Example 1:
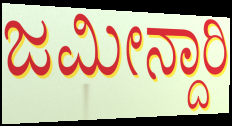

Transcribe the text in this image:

ಜಮೀನ್ದಾರಿ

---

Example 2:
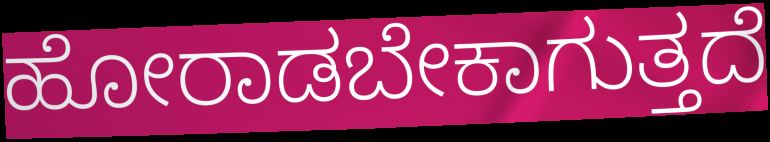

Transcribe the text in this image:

ಹೋರಾಡಬೇಕಾಗುತ್ತದೆ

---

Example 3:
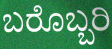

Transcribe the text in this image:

ಬರೊಬ್ಬರಿ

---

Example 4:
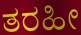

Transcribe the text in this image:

ತರಹೀ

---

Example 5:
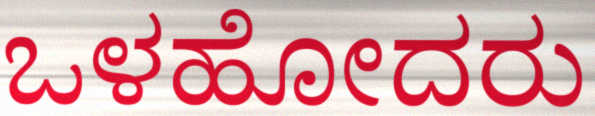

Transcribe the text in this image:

ಒಳಹೋದರು